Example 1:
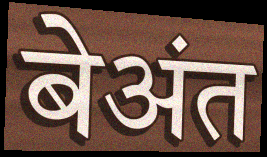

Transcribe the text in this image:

बेअंत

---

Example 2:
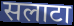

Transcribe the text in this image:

सलाटा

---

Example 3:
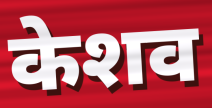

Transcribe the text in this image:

केशव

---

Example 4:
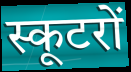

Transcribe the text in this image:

स्कूटरों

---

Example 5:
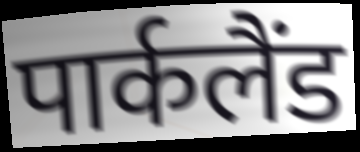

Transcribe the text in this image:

पार्कलैंड